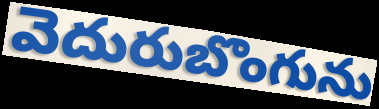
వెదురుబొంగును